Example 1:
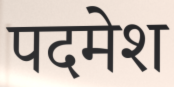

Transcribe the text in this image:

पदमेश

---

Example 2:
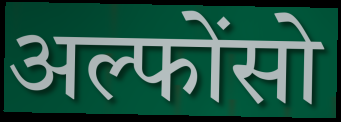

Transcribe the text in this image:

अल्फोंसो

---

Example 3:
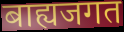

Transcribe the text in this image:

बाह्यजगत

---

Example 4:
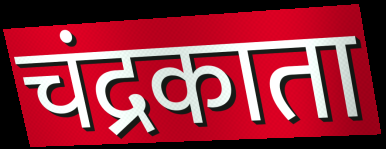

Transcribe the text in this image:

चंद्रकाता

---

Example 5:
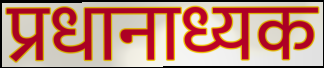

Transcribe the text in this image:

प्रधानाध्यक